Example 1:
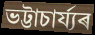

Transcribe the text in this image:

ভট্টাচাৰ্য্যৰ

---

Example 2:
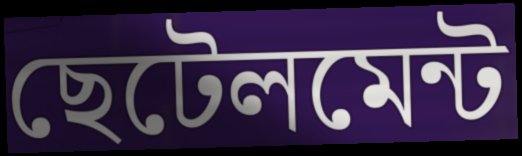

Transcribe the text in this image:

ছেটেলমেন্ট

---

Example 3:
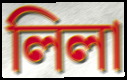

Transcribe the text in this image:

লিলা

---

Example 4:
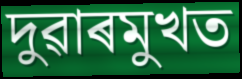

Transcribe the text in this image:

দুৱাৰমুখত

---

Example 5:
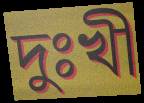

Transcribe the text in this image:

দুঃখী